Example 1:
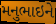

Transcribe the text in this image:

મનુભાઇને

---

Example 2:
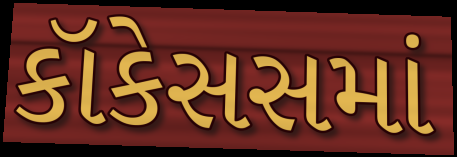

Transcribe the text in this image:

કૉકેસસમાં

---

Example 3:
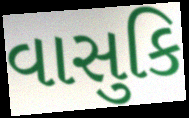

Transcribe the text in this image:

વાસુકિ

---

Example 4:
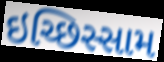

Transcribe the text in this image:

ઇચ્છિસ્સામ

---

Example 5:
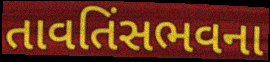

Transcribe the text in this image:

તાવતિંસભવના